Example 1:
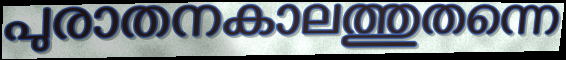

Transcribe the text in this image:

പുരാതനകാലത്തുതന്നെ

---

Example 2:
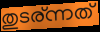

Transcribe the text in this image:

തുടര്ന്നത്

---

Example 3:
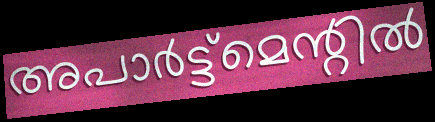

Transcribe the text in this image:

അപാർട്ട്മെന്റിൽ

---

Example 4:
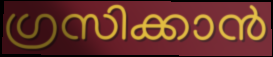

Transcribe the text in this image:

ഗ്രസിക്കാൻ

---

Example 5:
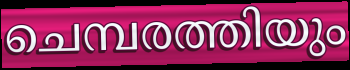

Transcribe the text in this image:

ചെമ്പരത്തിയും